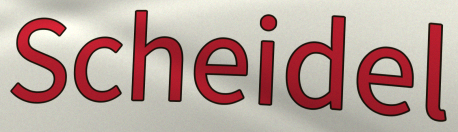
Scheidel